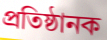
প্ৰতিষ্ঠানক